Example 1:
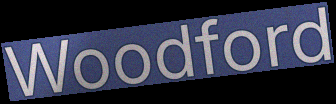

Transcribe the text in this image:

Woodford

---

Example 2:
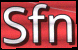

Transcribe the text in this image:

Sfn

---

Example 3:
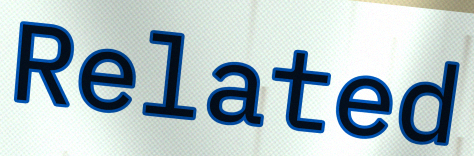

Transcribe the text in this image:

Related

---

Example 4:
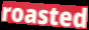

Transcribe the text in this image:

roasted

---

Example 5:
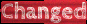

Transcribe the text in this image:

Changed